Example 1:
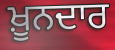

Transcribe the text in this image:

ਖ਼ੂਨਦਾਰ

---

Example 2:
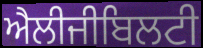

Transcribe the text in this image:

ਐਲੀਜੀਬਿਲਟੀ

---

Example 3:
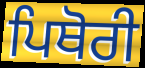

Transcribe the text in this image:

ਪਿਥੋਰੀ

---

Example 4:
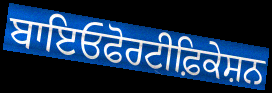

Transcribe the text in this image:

ਬਾਇਓਫੋਰਟੀਫ਼ਿਕੇਸ਼ਨ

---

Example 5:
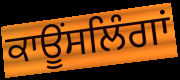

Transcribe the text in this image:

ਕਾਊਂਸਲਿੰਗਾਂ